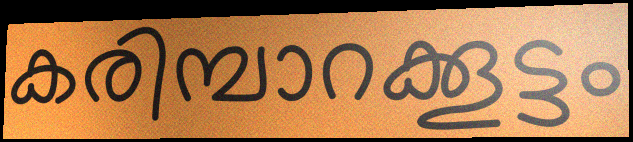
കരിമ്പാറക്കൂട്ടം